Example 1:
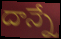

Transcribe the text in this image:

దాన్నే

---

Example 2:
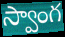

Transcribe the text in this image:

స్వాంగ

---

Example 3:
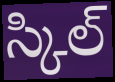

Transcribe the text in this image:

స్కిల్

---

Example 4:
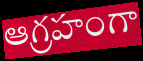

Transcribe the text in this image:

ఆగ్రహంగా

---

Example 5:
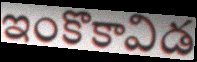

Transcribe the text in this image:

ఇంకొకావిడ